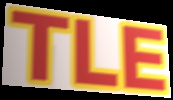
TLE